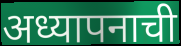
अध्यापनाची